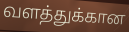
வளத்துக்கான